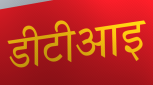
डीटीआइ